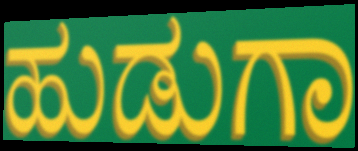
ಹುಡುಗಾ